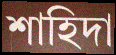
শাহিদা